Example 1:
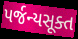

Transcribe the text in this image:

પર્જન્યસૂક્ત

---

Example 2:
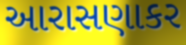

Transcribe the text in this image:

આરાસણાકર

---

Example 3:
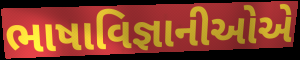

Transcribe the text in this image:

ભાષાવિજ્ઞાનીઓએ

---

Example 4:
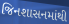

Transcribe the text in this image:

જિનશાસનમાંથી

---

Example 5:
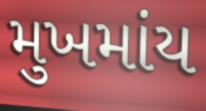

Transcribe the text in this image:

મુખમાંય